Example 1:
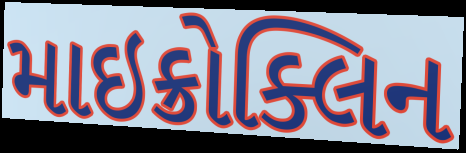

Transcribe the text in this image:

માઇક્રોક્લિન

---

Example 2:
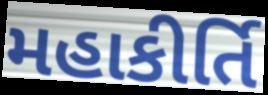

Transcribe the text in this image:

મહાકીર્તિ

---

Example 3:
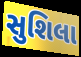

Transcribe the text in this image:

સુશિલા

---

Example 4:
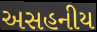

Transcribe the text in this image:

અસહનીય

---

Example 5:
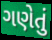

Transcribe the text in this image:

ગણેતું